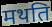
मथति